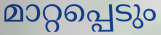
മാറ്റപ്പെടും